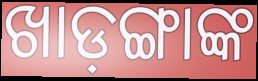
ଖାଡ଼ଙ୍ଗାଙ୍କ